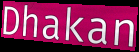
Dhakan